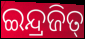
ଇନ୍ଦ୍ରଜିତ୍